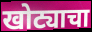
खोट्याचा